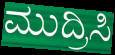
ಮುದ್ರಿಸಿ